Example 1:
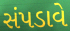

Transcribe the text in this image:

સંપડાવે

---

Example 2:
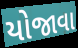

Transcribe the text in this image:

યોજાવા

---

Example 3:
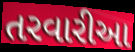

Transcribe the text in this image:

તરવારીઆ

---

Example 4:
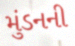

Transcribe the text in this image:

મુંડનની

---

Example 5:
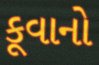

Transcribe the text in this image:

કૂવાનો